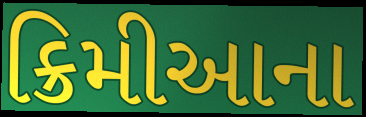
ક્રિમીઆના